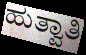
ಹುತ್ವಾತಿ